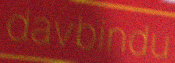
davbindu